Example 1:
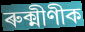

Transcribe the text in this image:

ৰুক্মীণীক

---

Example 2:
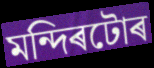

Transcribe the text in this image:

মন্দিৰটোৰ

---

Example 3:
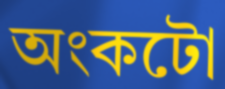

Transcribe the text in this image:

অংকটো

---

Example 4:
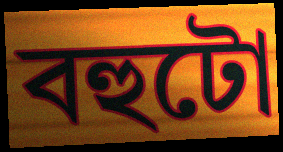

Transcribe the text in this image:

বহুটো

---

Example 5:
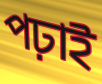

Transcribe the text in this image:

পঢ়াই